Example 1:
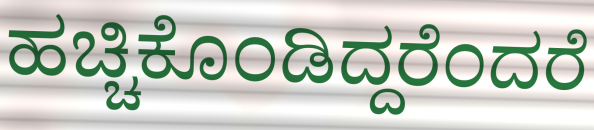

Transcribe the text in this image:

ಹಚ್ಚಿಕೊಂಡಿದ್ದರೆಂದರೆ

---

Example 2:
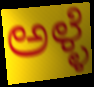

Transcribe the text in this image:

ಅಳ್ಳೆ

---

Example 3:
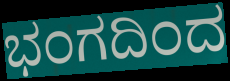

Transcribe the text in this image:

ಭಂಗದಿಂದ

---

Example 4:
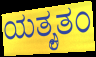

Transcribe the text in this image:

ಯತ್ಕೃತಂ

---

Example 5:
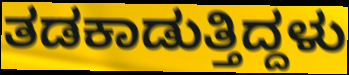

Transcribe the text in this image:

ತಡಕಾಡುತ್ತಿದ್ದಳು